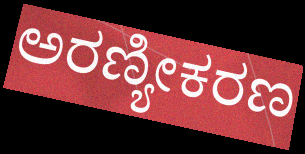
ಅರಣ್ಯೀಕರಣ